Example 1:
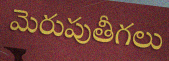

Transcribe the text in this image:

మెరుపుతీగలు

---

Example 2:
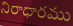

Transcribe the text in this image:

నిరాధారము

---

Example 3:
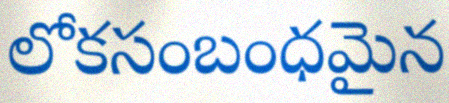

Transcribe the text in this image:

లోకసంబంధమైన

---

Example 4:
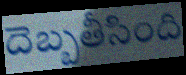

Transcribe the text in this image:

దెబ్బతీసింది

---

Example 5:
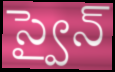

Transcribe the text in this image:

స్వైన్